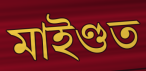
মাইণ্ডত